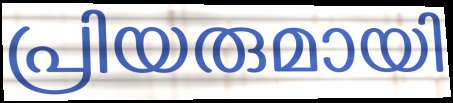
പ്രിയരുമായി